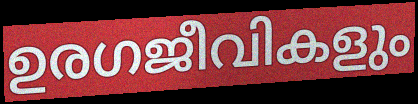
ഉരഗജീവികളും